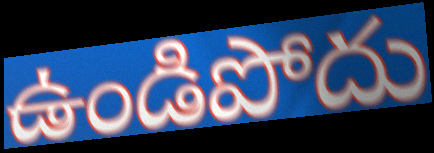
ఉండిపోదు